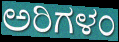
ಅರಿಗಳಂ